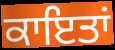
ਕਾਇਤਾਂ